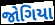
જોગિયા